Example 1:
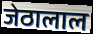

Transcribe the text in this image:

जेठालाल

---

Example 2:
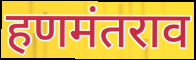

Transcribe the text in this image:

हणमंतराव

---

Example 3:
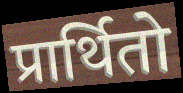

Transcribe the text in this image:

प्रार्थितो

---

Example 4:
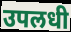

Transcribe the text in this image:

उपलधी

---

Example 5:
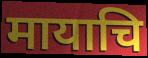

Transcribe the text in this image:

मायाचि